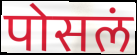
पोसलं